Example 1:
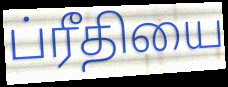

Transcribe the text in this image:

ப்ரீதியை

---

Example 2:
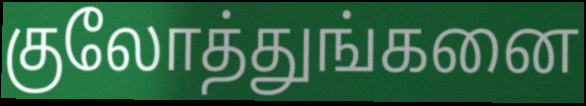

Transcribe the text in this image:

குலோத்துங்கனை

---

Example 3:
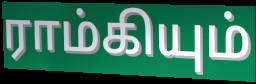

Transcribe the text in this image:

ராம்கியும்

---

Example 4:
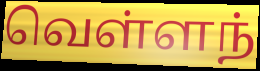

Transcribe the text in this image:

வெள்ளந்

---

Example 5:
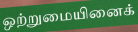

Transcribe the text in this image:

ஒற்றுமையினைக்